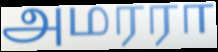
அமரரா